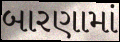
બારણામાં